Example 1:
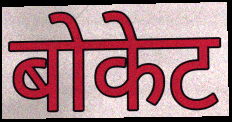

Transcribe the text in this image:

बोकेट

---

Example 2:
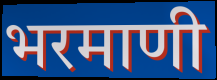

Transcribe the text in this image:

भरमाणी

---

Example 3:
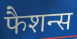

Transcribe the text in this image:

फैशन्स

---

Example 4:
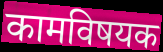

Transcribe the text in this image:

कामविषयक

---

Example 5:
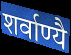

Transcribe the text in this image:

शर्वाण्यै